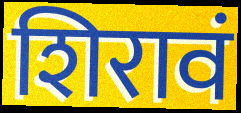
शिरावं